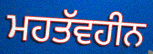
ਮਹਤੱਵਹੀਨ